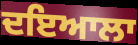
ਦਇਆਲਾ